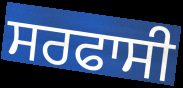
ਸਰਫਾਸੀ